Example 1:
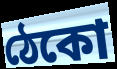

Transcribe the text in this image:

ঠেকো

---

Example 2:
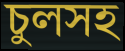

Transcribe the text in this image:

চুলসহ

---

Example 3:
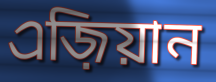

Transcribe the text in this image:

এজ়িয়ান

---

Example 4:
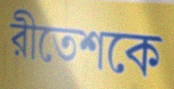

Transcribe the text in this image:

রীতেশকে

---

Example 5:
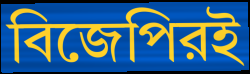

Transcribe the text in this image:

বিজেপিরই